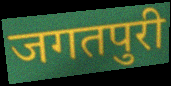
जगतपुरी